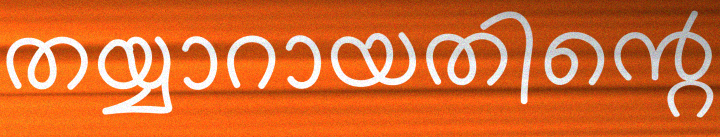
തയ്യാറായതിന്റെ